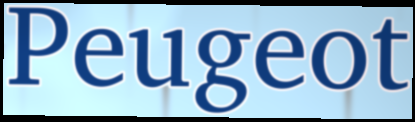
Peugeot